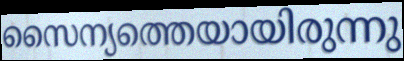
സൈന്യത്തെയായിരുന്നു